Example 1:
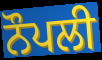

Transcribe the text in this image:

ਨੌਪਲੀ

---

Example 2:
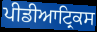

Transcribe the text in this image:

ਪੀਡੀਆਟ੍ਰਿਕਸ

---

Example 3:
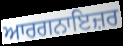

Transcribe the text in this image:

ਆਰਗਨਾਇਜ਼ਰ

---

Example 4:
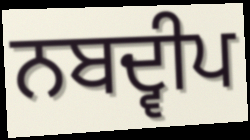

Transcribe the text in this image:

ਨਬਦ੍ਵੀਪ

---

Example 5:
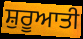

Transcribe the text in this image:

ਸ਼ੁਰੂਆਤੀ